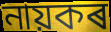
নায়কৰ